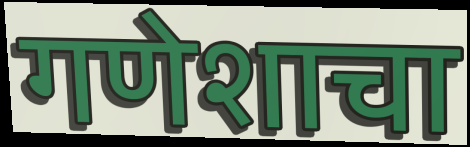
गणेशाचा